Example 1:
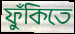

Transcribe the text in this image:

ফুঁকিতে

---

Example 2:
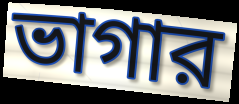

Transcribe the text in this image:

ভাগার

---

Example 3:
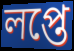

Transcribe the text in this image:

লপ্তে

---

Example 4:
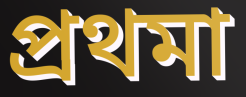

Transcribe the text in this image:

প্রথমা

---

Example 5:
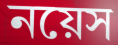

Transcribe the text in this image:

নয়েস